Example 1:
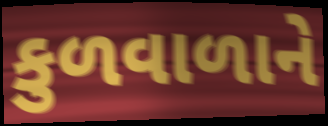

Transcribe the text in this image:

કુળવાળાને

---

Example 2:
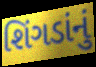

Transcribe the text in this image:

શિંગડાંનું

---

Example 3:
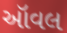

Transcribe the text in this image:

ઑવલ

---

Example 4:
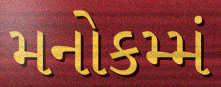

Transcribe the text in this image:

મનોકમ્મં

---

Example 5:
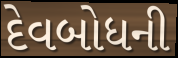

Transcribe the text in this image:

દેવબોધની